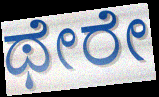
ಥೇರೇ